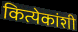
कित्येकांशी